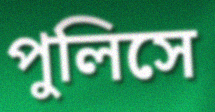
পুলিসে